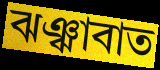
ঝঞ্ঝাবাত